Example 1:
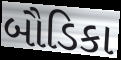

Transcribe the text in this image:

બૌડિકા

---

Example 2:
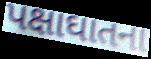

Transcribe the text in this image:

પક્ષાઘાતના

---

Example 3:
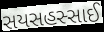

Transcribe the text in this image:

સયસહસ્સાઈ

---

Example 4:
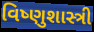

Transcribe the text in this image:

વિષ્ણુશાસ્ત્રી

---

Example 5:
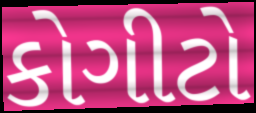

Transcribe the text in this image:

કોગીટો